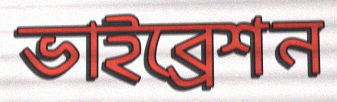
ভাইব্রেশন